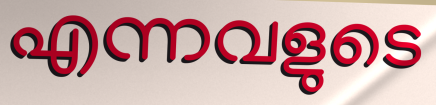
എന്നവളുടെ